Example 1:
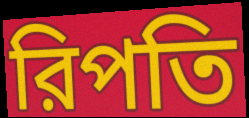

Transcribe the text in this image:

রিপতি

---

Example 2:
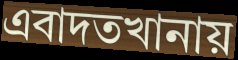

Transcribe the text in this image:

এবাদতখানায়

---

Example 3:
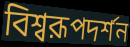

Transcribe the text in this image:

বিশ্বরূপদর্শন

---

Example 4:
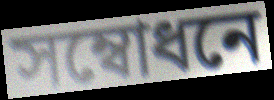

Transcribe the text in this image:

সম্বোধনে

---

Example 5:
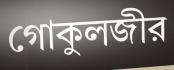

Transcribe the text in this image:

গোকুলজীর